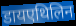
डायएथिलिन